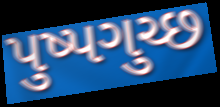
પુષ્પગુચ્છ